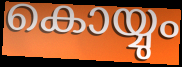
കൊയ്യും